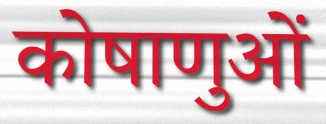
कोषाणुओं